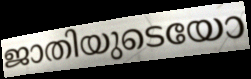
ജാതിയുടെയോ